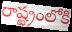
రాష్ట్రంలోకి